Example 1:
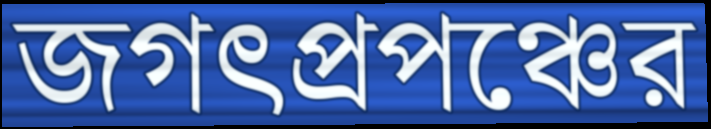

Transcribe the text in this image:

জগৎপ্রপঞ্চের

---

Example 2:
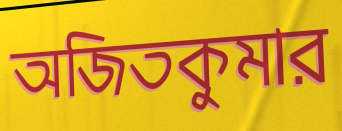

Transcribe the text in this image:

অজিতকুমার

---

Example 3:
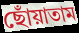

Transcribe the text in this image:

ছোঁয়াতাম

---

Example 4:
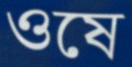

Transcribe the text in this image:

ওষে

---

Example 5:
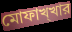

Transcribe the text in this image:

মোফাখ্খার